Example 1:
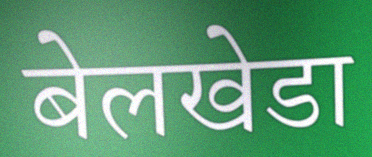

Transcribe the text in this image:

बेलखेडा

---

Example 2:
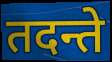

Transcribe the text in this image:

तदन्ते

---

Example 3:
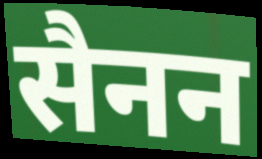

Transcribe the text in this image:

सैनन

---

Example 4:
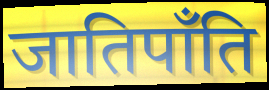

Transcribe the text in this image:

जातिपाँति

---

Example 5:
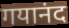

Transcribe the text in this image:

गयानंद